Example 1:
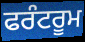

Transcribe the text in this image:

ਫਰੰਟਰੂਮ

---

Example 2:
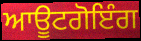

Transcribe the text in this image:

ਆਊਟਗੋਇੰਗ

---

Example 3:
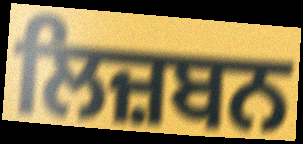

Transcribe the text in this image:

ਲਿਜ਼ਬਨ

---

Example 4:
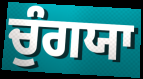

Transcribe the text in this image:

ਚੁੰਗਯਾ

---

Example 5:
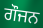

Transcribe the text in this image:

ਗੌਜਨ